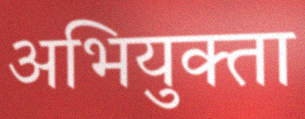
अभियुक्ता